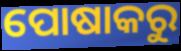
ପୋଷାକରୁ